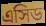
এসিড